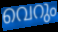
വെറും